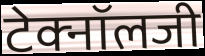
टेक्‍नॉलजी